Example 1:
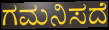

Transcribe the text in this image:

ಗಮನಿಸದೆ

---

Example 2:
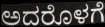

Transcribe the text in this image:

ಅದರೊಳಗೆ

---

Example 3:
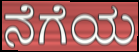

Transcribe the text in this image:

ನೆಗೆಯ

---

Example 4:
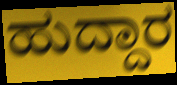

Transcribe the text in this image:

ಹುದ್ದಾರ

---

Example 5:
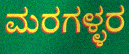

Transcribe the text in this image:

ಮರಗಳ್ಳರ